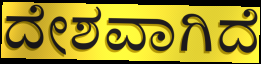
ದೇಶವಾಗಿದೆ